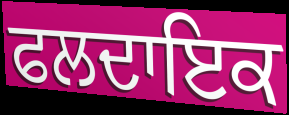
ਫਲਦਾਇਕ